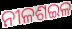
ନୀଳଶଇଳ